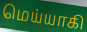
மெய்யாகி